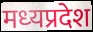
मध्‍यप्रदेश